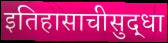
इतिहासाचीसुद्धा